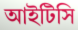
আইটিসি